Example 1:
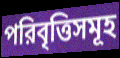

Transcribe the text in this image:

পরিবৃত্তিসমূহ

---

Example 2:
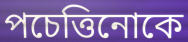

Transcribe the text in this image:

পচেত্তিনোকে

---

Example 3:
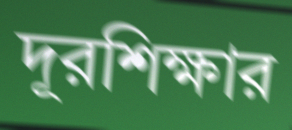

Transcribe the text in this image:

দূরশিক্ষার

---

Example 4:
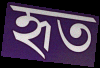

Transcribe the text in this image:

হৃত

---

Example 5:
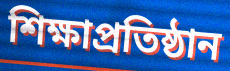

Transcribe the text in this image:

শিক্ষাপ্রতিষ্ঠান